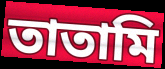
তাতামি